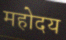
महोदय